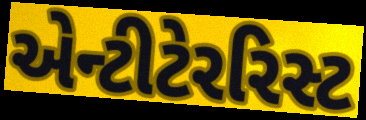
એન્ટીટેરરિસ્ટ